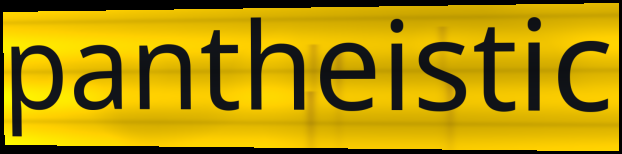
pantheistic